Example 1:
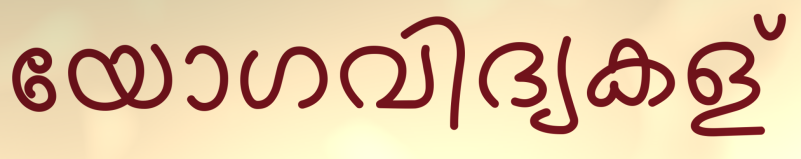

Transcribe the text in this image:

യോഗവിദ്യകള്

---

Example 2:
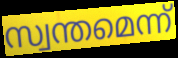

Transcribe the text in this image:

സ്വന്തമെന്ന്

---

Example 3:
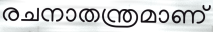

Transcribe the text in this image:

രചനാതന്ത്രമാണ്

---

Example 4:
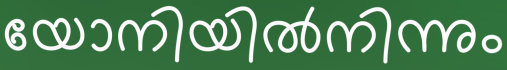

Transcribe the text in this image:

യോനിയിൽനിന്നും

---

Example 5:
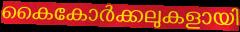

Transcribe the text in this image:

കൈകോർക്കലുകളായി